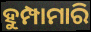
ହୁମ୍ପାମାରି